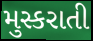
મુસ્કરાતી